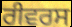
ਰੀਵਰਸ